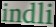
indli